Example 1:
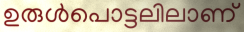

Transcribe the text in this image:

ഉരുൾപൊട്ടലിലാണ്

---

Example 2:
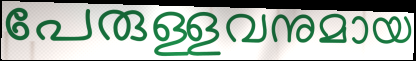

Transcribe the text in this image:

പേരുള്ളവനുമായ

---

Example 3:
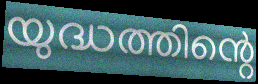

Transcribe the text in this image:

യുദ്ധത്തിന്റെ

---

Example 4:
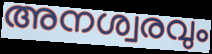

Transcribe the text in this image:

അനശ്വരവും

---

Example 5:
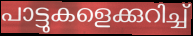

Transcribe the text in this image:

പാട്ടുകളെക്കുറിച്ച്